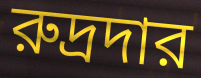
রুদ্রদার